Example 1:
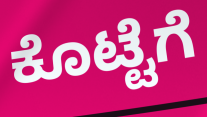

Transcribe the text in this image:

ಕೊಟ್ಟೆಗೆ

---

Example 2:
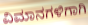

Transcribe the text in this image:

ವಿಮಾನಗಳಿಗಾಗಿ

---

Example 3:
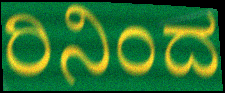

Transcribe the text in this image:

ರಿನಿಂದ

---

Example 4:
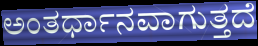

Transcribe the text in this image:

ಅಂತರ್ಧಾನವಾಗುತ್ತದೆ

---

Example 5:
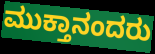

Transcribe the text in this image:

ಮುಕ್ತಾನಂದರು